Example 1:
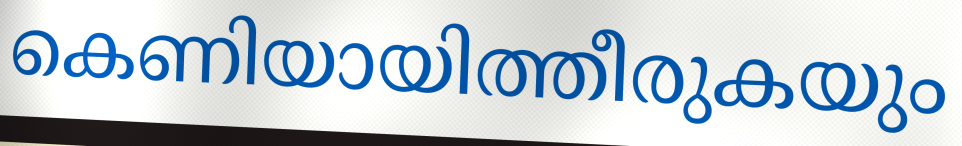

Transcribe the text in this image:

കെണിയായിത്തീരുകയും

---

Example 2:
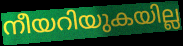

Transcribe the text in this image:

നീയറിയുകയില്ല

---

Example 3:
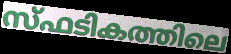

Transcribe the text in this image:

സ്ഫടികത്തിലെ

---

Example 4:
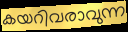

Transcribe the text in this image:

കയറിവരാവുന്ന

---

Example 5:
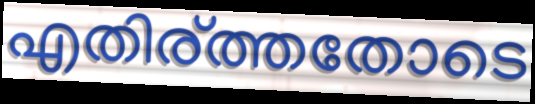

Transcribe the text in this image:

എതിര്ത്തതോടെ